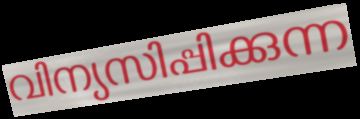
വിന്യസിപ്പിക്കുന്ന